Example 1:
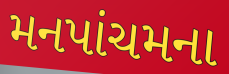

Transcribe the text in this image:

મનપાંચમના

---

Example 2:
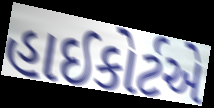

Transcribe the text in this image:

હાઈકોર્ટએ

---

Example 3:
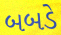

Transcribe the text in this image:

બબડે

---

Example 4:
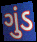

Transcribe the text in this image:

ગુંડ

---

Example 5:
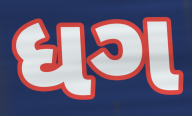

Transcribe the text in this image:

ધગ